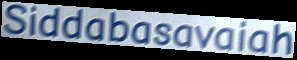
Siddabasavaiah